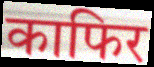
काफिर